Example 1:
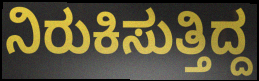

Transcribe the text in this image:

ನಿರುಕಿಸುತ್ತಿದ್ದ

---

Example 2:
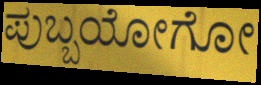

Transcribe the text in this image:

ಪುಬ್ಬಯೋಗೋ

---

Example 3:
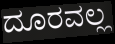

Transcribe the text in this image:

ದೂರವಲ್ಲ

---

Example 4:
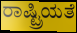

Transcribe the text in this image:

ರಾಷ್ಟ್ರಿಯತೆ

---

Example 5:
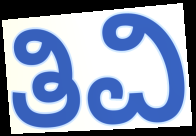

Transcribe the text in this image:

ತಿವಿ